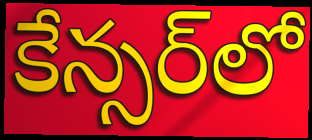
కేన్సర్‌లో